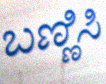
ಬಣ್ಣಿಸಿ